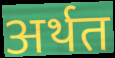
अर्थत